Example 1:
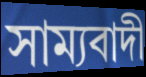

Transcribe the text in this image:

সাম্যবাদী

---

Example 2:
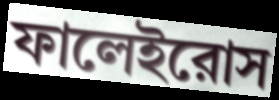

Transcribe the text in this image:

ফালেইরোস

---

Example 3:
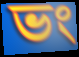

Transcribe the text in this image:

ভং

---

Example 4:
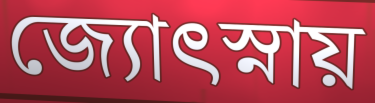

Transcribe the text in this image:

জ্যোৎস্নায়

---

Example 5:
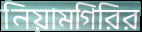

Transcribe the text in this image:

নিয়ামগিরির